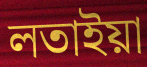
লতাইয়া